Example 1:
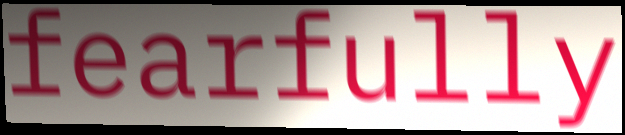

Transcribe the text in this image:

fearfully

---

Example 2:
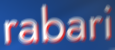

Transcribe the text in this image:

rabari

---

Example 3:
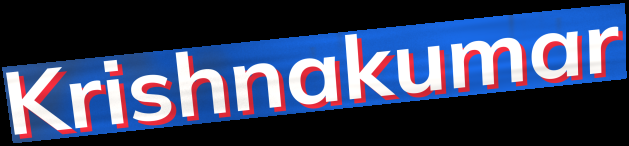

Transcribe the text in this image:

Krishnakumar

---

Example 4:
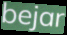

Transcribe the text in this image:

bejar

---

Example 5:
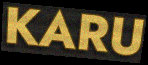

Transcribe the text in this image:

KARU